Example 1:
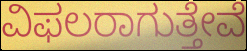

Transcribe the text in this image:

ವಿಫಲರಾಗುತ್ತೇವೆ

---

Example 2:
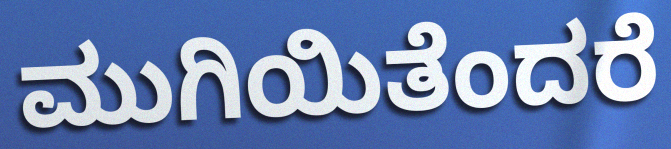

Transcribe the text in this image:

ಮುಗಿಯಿತೆಂದರೆ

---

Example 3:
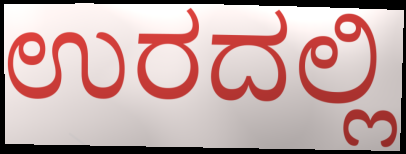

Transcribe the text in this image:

ಉರದಲ್ಲಿ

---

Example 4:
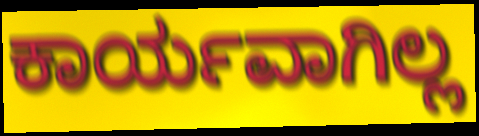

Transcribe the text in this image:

ಕಾರ್ಯವಾಗಿಲ್ಲ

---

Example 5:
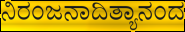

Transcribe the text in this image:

ನಿರಂಜನಾದಿತ್ಯಾನಂದ